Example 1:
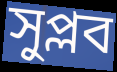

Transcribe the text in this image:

সুপ্লব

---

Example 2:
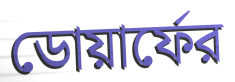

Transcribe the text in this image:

ডোয়ার্ফের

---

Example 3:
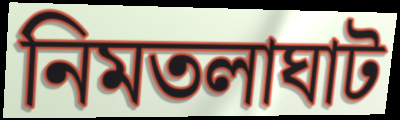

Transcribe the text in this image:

নিমতলাঘাট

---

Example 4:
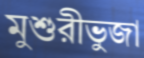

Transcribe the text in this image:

মুশুরীভুজা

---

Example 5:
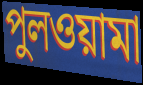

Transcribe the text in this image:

পুলওয়ামা